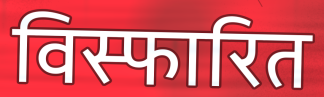
विस्फारित